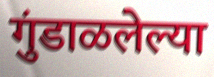
गुंडाळलेल्या